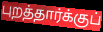
புறத்தார்க்குப்